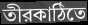
তীরকাঠিতে